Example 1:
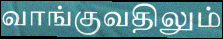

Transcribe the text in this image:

வாங்குவதிலும்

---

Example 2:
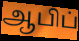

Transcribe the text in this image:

ஆபிப்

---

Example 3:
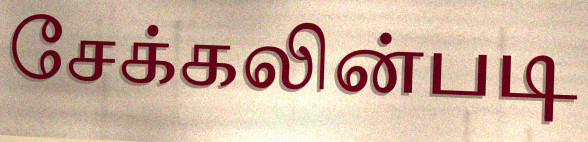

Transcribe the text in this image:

சேக்கலின்படி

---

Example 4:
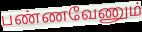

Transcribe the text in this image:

பண்ணவேணும்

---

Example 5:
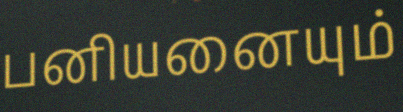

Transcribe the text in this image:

பனியனையும்